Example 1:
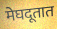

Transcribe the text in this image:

मेघदूतात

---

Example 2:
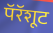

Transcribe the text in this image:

पॅरॅशूट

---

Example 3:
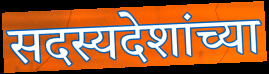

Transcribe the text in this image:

सदस्यदेशांच्या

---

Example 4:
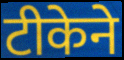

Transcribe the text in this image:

टीकेने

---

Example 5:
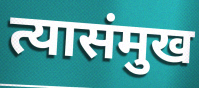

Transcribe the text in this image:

त्यासंमुख